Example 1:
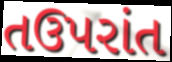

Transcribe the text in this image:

તઉપરાંત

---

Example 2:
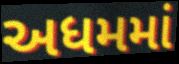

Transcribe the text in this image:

અધમમાં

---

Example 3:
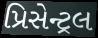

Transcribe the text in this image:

પ્રિસેન્ટ્રલ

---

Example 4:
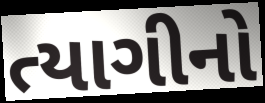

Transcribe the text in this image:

ત્યાગીનો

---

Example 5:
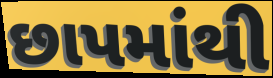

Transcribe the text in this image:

છાપમાંથી